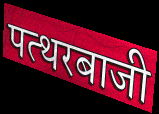
पत्थरबाजी